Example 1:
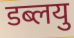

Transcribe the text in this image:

डब्लयु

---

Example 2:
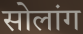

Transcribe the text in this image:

सोलांग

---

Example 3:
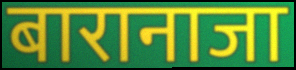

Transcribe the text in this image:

बारानाजा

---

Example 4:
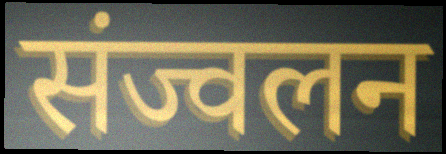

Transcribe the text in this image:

संज्वलन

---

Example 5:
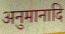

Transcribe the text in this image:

अनुमानादि